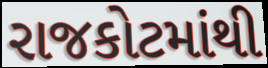
રાજકોટમાંથી